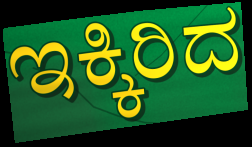
ಇಕ್ಕಿರಿದ